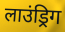
लाउंड्रिग